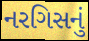
નરગિસનું